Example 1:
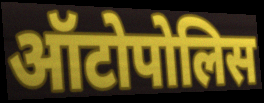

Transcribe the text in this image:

ऑटोपोलिस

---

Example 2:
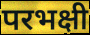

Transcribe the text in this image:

परभक्षी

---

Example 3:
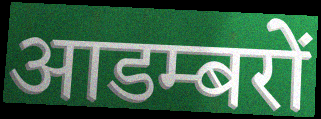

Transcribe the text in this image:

आडम्बरों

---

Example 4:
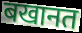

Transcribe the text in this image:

बखानत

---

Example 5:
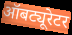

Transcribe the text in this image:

ऑबट्यूरेटर